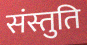
संस्तुति